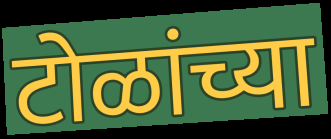
टोळांच्या